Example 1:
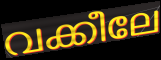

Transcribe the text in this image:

വക്കീലേ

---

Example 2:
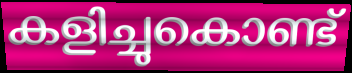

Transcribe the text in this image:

കളിച്ചുകൊണ്ട്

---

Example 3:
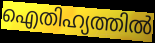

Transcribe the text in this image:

ഐതിഹ്യത്തിൽ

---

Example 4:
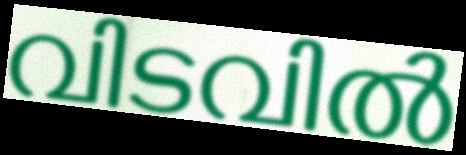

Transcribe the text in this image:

വിടവിൽ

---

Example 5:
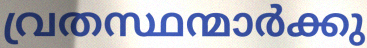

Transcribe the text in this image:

വ്രതസ്ഥന്മാർക്കു